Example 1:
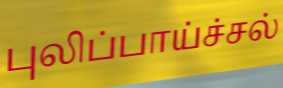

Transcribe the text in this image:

புலிப்பாய்ச்சல்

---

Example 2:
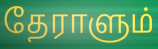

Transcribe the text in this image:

தேராளும்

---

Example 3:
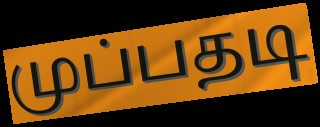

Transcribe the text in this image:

முப்பதடி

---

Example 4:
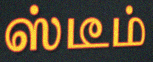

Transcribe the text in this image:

ஸ்டீம்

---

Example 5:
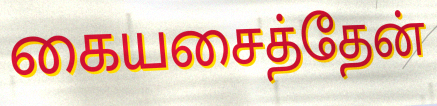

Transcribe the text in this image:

கையசைத்தேன்